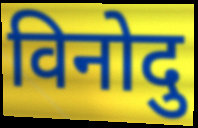
विनोदु